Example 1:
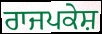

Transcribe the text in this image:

ਰਾਜਪਕੇਸ਼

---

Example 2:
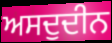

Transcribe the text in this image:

ਅਸਦੁਦੀਨ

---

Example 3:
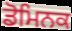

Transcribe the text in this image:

ਡੋਮਿਨਕ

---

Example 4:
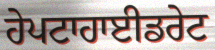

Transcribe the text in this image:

ਹੇਪਟਾਹਾਈਡਰੇਟ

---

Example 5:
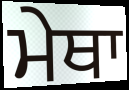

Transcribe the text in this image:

ਮੇਥਾ